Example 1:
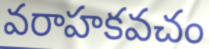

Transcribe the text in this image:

వరాహకవచం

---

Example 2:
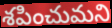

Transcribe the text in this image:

శపించుమని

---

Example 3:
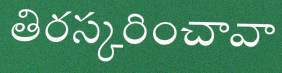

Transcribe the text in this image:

తిరస్కరించావా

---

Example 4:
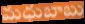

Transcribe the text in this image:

మధుబాబు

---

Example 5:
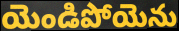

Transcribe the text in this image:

యెండిపోయెను